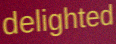
delighted